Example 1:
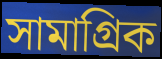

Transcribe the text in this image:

সামাগ্রিক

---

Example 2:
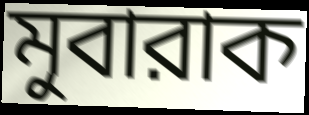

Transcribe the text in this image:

মুবারাক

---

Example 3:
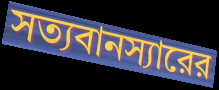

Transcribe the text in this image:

সত্যবানস্যারের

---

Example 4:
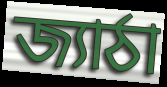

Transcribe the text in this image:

জ্যাঠা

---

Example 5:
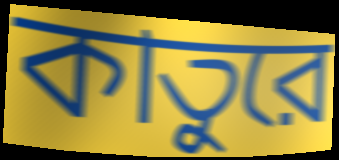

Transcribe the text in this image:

কাতুরে